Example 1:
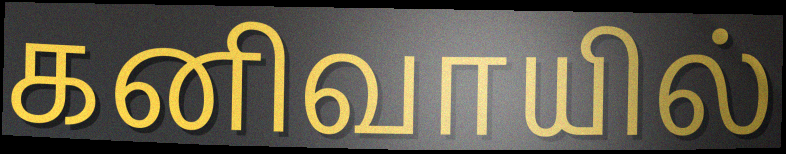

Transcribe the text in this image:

கனிவாயில்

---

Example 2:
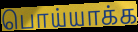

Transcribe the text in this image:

பொய்யாக்க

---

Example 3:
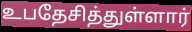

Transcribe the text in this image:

உபதேசித்துள்ளார்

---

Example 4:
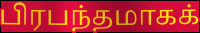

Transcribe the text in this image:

பிரபந்தமாகக்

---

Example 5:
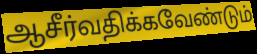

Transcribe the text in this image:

ஆசீர்வதிக்கவேண்டும்